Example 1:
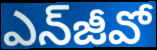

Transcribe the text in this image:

ఎన్‌జీవో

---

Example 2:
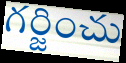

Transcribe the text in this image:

గర్జించు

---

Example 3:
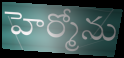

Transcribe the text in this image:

హెర్మోను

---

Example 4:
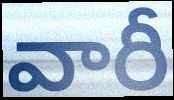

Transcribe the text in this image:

వారీ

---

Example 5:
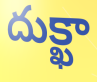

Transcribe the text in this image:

దుక్ఖా